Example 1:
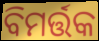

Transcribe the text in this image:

ବିମର୍ତ୍ତକ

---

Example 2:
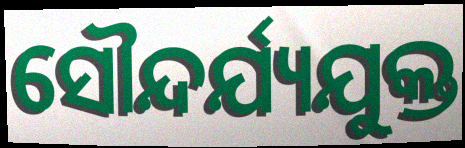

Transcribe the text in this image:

ସୌନ୍ଦର୍ଯ୍ୟଯୁକ୍ତ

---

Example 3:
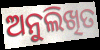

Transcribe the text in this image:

ଅନୁଲିଖିତ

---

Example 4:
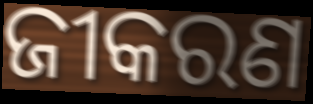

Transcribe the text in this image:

ଜୀକରଣ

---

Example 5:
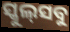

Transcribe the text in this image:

ସ୍କୁଲ୍‍ସବୁ